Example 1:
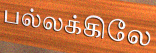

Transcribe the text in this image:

பல்லக்கிலே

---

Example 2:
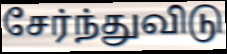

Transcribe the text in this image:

சேர்ந்துவிடு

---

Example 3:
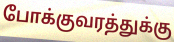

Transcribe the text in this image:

போக்குவரத்துக்கு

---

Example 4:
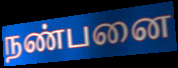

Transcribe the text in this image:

நண்பனை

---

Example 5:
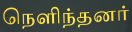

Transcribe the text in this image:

நெளிந்தனர்